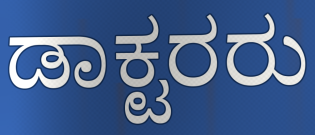
ಡಾಕ್ಟರರು